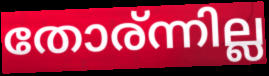
തോര്ന്നില്ല